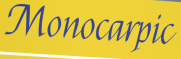
Monocarpic